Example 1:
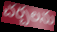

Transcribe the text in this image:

చర్చలను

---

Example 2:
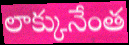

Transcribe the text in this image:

లాక్కునేంత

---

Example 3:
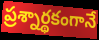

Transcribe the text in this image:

ప్రశ్నార్థకంగానే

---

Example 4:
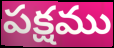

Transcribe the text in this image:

పక్షము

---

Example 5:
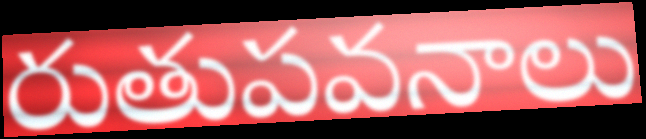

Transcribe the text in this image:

రుతుపవనాలు